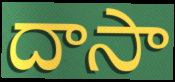
దాసా